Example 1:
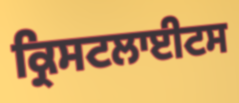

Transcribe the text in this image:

ਕ੍ਰਿਸਟਲਾਈਟਸ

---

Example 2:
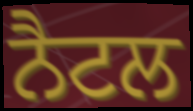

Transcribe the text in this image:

ਨੈਟਲ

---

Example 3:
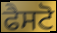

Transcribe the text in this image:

ਫੈਸਟੋ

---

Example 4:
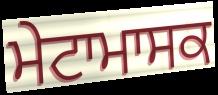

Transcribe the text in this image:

ਮੇਟਾਮਾਸਕ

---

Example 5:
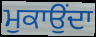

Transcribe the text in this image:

ਮੁਕਾਉਂਦਾ